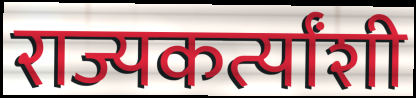
राज्यकर्त्यांशी